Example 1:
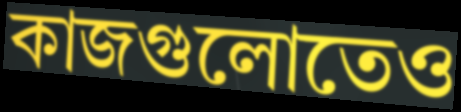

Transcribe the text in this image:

কাজগুলোতেও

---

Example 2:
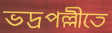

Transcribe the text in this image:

ভদ্রপল্লীতে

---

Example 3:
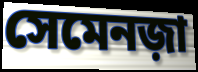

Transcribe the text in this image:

সেমেনজ়া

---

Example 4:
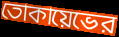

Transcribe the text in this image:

তোকায়েভের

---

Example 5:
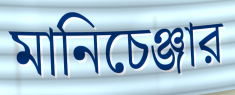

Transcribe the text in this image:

মানিচেঞ্জার